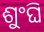
ଶୁଂଘି